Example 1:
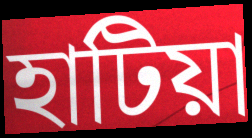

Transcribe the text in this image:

হাটিয়া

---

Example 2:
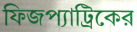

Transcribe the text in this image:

ফিজপ্যাট্রিকের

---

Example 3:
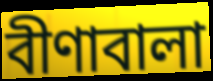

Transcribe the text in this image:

বীণাবালা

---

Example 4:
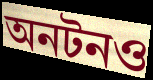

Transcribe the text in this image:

অনটনও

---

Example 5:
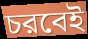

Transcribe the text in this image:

চরবেই